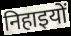
निहाइयों